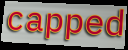
capped